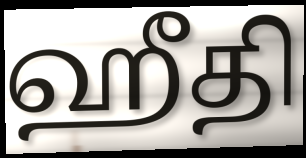
ஹீதி